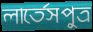
লার্তেসপুত্র